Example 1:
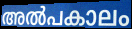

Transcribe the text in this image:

അൽപകാലം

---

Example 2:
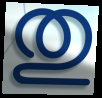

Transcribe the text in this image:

തു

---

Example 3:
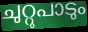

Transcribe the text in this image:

ചുറ്റുപാടും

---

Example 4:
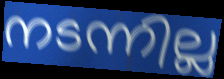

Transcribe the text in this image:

നടന്നില്ല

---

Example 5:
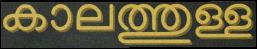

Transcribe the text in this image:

കാലത്തുള്ള